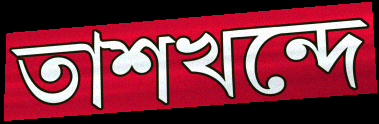
তাশখন্দে